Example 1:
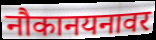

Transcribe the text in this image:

नौकानयनावर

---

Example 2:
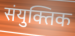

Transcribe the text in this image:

संयुक्‍तिक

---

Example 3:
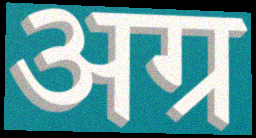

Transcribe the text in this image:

अग्र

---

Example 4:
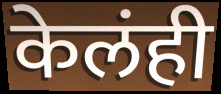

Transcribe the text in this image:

केलंही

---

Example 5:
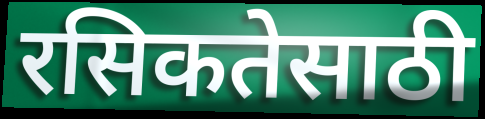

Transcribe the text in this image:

रसिकतेसाठी